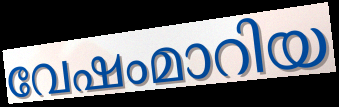
വേഷംമാറിയ